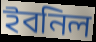
ইবনিল